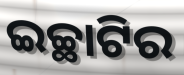
ଇଚ୍ଛାଟିର